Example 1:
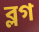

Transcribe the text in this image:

ব্লগ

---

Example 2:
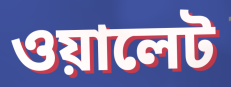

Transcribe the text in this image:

ওয়ালেট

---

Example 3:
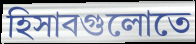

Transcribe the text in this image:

হিসাবগুলোতে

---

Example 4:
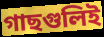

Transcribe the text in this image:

গাছগুলিই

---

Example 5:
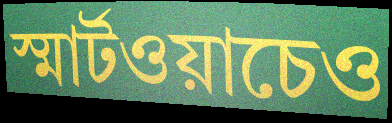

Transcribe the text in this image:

স্মার্টওয়াচেও